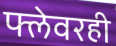
फ्लेवरही